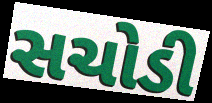
સચોડી